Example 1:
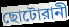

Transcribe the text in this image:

ছোটোরানী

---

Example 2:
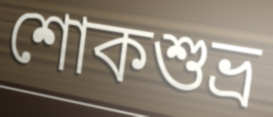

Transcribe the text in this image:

শোকশুভ্র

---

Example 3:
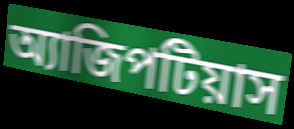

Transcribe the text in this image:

অ্যাজিপটিয়াস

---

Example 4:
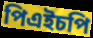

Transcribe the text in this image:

পিএইচপি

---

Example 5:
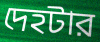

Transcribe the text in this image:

দেহটার